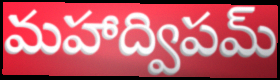
మహాద్విపమ్